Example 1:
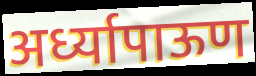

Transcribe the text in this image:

अर्ध्यापाऊण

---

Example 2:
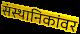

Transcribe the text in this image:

संस्थानिकांवर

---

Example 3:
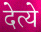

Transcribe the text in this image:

देत्ये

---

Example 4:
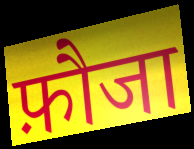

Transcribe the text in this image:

फ़ौजा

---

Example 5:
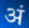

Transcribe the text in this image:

अं